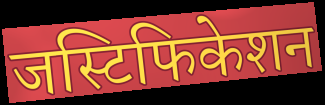
जस्टिफिकेशन